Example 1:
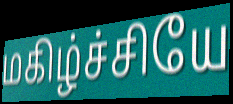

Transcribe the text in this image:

மகிழ்ச்சியே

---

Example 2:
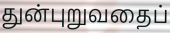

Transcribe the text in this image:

துன்புறுவதைப்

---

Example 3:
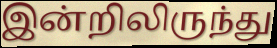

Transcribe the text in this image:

இன்றிலிருந்து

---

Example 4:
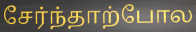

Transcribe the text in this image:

சேர்ந்தாற்போல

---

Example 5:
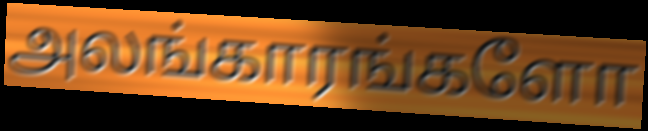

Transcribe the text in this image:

அலங்காரங்களோ